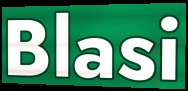
Blasi